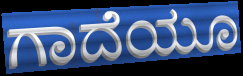
ಗಾದೆಯೂ